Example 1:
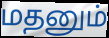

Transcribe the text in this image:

மதனும்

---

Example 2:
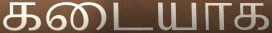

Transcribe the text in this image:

கடையாக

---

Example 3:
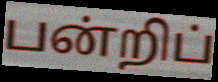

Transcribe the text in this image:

பன்றிப்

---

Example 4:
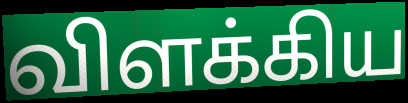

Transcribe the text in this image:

விளக்கிய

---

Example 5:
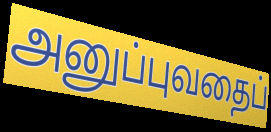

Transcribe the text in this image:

அனுப்புவதைப்